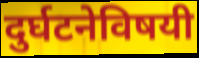
दुर्घटनेविषयी